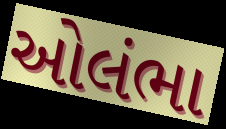
ઓલંભા